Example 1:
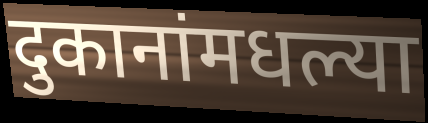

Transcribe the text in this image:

दुकानांमधल्या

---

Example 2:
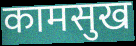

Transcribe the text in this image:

कामसुख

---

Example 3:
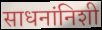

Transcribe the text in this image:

साधनांनिशी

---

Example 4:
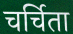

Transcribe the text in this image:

चर्चिता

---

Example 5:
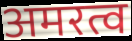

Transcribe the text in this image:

अमरत्व